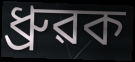
ধ্ৰুৱক